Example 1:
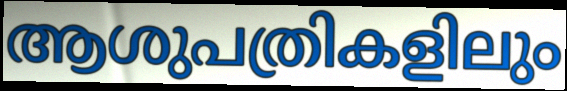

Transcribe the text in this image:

ആശുപത്രികളിലും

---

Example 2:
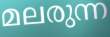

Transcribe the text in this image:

മലരുന്ന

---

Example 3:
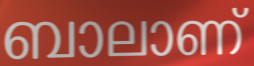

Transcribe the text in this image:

ബാലാണ്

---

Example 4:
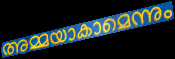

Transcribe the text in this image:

അമ്മയാകാമെന്നും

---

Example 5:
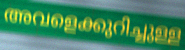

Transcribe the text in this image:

അവളെക്കുറിച്ചുള്ള